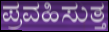
ಪ್ರವಹಿಸುತ್ತ